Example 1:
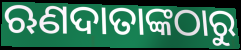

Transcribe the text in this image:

ଋଣଦାତାଙ୍କଠାରୁ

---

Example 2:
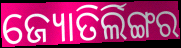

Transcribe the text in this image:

ଜ୍ୟୋତିର୍ଲିଙ୍ଗର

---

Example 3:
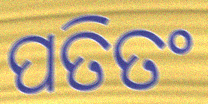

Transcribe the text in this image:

ପତିତଂ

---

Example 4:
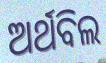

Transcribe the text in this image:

ଅର୍ଥବିଲ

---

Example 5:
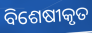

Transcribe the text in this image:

ବିଶେଷୀକୃତ